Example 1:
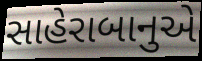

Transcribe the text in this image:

સાહેરાબાનુએ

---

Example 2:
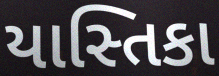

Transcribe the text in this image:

યાસ્તિકા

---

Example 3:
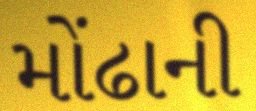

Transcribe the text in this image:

મોંઢાની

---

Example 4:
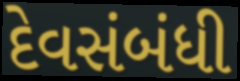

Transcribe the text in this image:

દેવસંબંધી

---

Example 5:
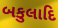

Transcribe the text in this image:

બકુલાદિ